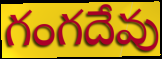
గంగదేవు